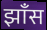
झाँस